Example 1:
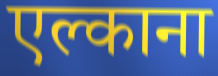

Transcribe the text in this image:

एल्काना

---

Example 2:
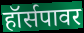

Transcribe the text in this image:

हॉर्सपावर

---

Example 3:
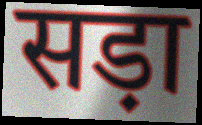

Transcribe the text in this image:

सड़ा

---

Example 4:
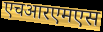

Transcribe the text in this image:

एचआरएमएस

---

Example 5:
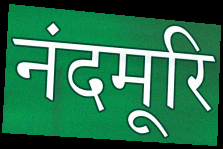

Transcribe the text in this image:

नंदमूरि